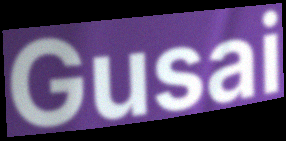
Gusai